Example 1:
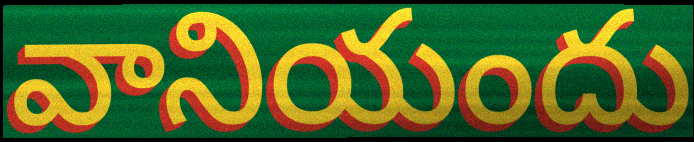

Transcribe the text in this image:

వానియందు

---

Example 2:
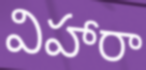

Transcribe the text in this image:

విహారా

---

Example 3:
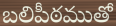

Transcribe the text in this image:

బలిపీఠముతో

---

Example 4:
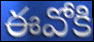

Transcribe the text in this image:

ఈవోకి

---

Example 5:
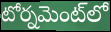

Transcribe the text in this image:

టోర్నమెంట్‌లో